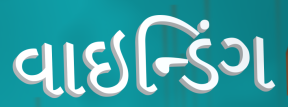
વાઇન્ડિંગ